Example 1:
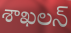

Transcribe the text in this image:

శాఖలన్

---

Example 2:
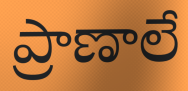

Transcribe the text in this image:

ప్రాణాలే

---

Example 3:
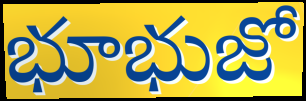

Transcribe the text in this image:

భూభుజో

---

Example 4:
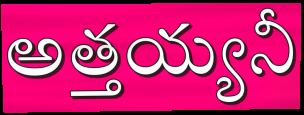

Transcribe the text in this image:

అత్తయ్యనీ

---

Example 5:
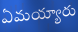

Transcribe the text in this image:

ఏమయ్యారు